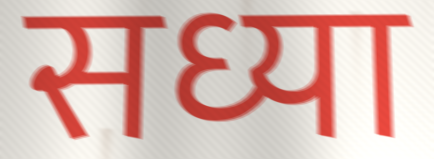
सध्या